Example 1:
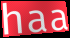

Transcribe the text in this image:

haa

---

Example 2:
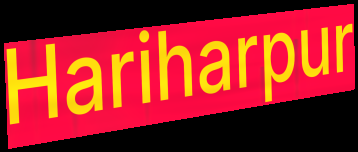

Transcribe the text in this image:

Hariharpur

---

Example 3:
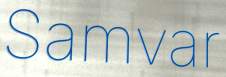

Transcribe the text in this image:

Samvar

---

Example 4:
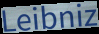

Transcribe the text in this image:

Leibniz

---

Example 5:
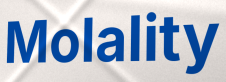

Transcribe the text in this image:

Molality